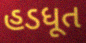
હડધૂત